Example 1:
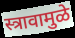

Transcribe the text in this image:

स्त्रावामुळे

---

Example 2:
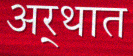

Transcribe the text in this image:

अर्थात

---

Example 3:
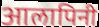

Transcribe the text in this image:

आलापिनी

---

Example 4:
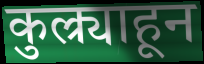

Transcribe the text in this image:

कुल्र्याहून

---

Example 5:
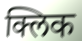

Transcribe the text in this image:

क्लिक